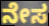
ನೇಸ